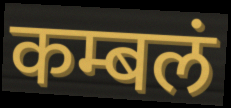
कम्बलं